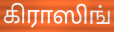
கிராஸிங்